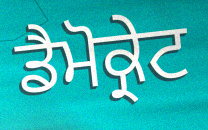
ਡੈਮੋਕ੍ਰੇਟ